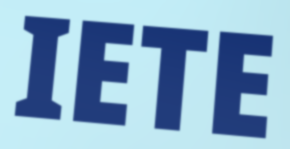
IETE